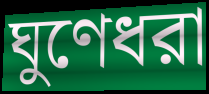
ঘুণেধরা